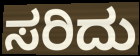
ಸರಿದು